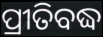
ପ୍ରୀତିବଦ୍ଧ